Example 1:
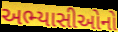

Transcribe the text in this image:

અભ્યાસીઓનો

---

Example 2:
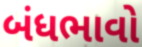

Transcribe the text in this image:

બંધભાવો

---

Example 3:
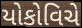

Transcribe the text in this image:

યોકોવિચે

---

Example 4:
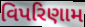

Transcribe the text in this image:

વિપરિણામ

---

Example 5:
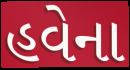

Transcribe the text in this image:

હવેના